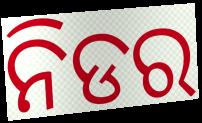
ନିଡର